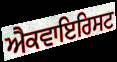
ਐਕਵਾਇਰਿਸਟ